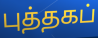
புத்தகப்